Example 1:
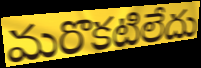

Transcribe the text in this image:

మరొకటిలేదు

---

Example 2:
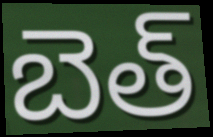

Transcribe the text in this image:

బెత్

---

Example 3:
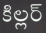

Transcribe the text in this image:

కిల్లర్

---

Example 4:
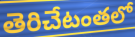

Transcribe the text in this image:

తెరిచేటంతలో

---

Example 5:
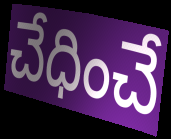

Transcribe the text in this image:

చేధించే